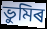
ভুমিৰ